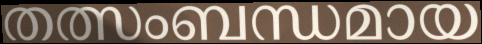
തത്സംബന്ധമായ